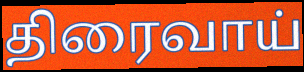
திரைவாய்